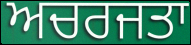
ਅਚਰਜਤਾ